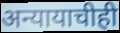
अन्यायाचीही